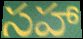
సహా